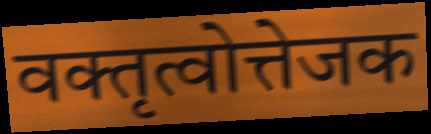
वक्तृत्वोत्तेजक